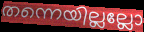
തന്നെയില്ലല്ലോ